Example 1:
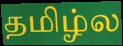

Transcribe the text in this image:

தமிழ்ல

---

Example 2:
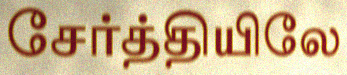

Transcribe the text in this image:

சேர்த்தியிலே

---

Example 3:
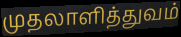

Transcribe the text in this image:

முதலாளித்துவம்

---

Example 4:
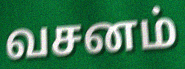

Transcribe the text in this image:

வசனம்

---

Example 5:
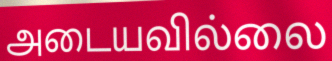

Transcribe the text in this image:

அடையவில்லை